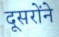
दूसरोंने